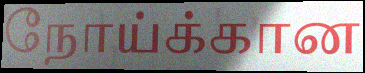
நோய்க்கான